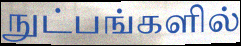
நுட்பங்களில்